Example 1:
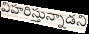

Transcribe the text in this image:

విహరిస్తున్నాడని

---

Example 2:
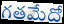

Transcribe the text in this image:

గతమేదో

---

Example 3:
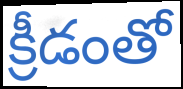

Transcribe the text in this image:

క్రీడంతో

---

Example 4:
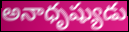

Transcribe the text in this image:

అనాధృష్యుడు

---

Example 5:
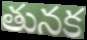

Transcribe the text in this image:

తునక